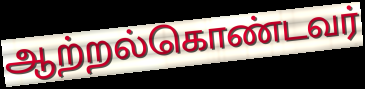
ஆற்றல்கொண்டவர்